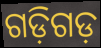
ଗଡ଼ିଗଡ଼